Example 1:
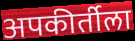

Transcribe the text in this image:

अपकीर्तीला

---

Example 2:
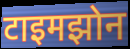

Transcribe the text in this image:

टाइमझोन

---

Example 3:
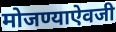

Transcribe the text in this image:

मोजण्याऐवजी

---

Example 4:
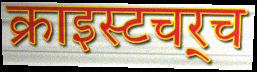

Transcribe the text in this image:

क्राइस्टचर्च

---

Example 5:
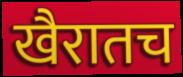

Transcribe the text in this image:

खैरातच